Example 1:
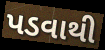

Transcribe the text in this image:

પડવાથી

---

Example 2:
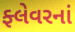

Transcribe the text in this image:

ફ્લેવરનાં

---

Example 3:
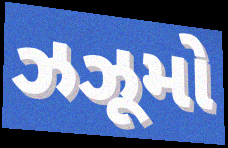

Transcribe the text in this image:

ઝઝૂમો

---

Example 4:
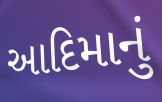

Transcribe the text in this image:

આદિમાનું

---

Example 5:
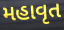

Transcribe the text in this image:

મહાવૃત